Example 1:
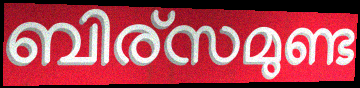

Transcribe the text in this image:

ബിര്സമുണ്ട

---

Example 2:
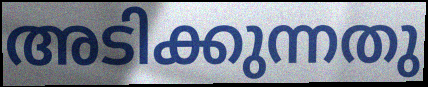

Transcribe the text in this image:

അടിക്കുന്നതു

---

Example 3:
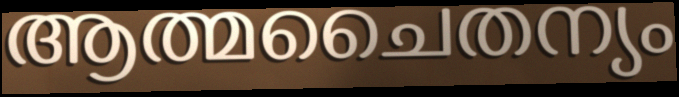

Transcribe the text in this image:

ആത്മചൈതന്യം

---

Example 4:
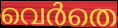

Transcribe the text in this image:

വെർതെ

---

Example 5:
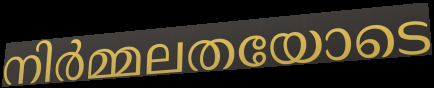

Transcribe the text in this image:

നിർമ്മലതയോടെ